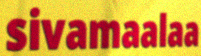
sivamaalaa